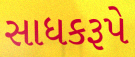
સાધકરૂપે